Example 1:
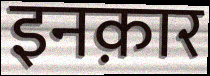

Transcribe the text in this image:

इनक़ार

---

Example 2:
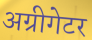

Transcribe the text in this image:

अग्रीगेटर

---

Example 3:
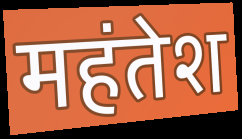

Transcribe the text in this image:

महंतेश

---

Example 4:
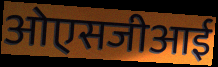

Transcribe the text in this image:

ओएसजीआई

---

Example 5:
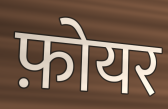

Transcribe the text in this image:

फ़ोयर